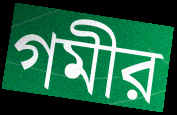
গমীর